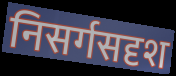
निसर्गसदृश